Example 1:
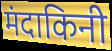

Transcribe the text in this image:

मंदाकिनी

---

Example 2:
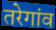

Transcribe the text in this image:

तरेगांव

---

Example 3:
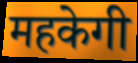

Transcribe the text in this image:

महकेगी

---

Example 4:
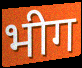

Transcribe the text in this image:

भीग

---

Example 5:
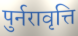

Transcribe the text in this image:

पुर्नरावृत्ति